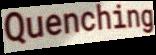
Quenching